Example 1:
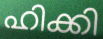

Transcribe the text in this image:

ഹിക്കി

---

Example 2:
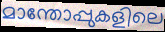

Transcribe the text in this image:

മാന്തോപ്പുകളിലെ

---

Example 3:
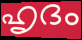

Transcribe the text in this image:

ഹൃദം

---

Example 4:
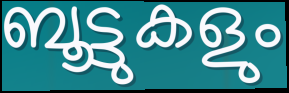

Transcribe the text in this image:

ബൂട്ടുകളും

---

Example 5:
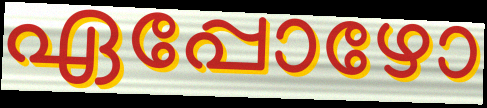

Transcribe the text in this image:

ഏപ്പോഴോ